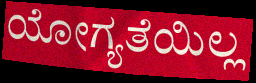
ಯೋಗ್ಯತೆಯಿಲ್ಲ